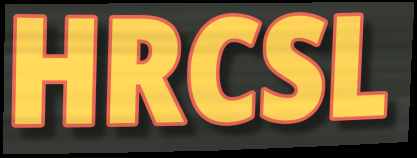
HRCSL